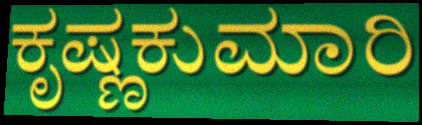
ಕೃಷ್ಣಕುಮಾರಿ